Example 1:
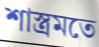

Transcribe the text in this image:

শাস্ত্রমতে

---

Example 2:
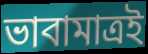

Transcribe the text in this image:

ভাবামাত্রই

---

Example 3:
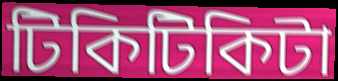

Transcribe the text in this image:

টিকিটিকিটা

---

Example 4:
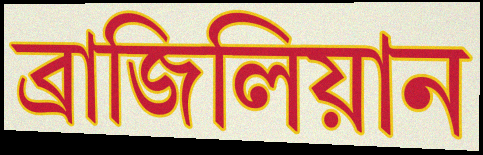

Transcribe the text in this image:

ব্রাজিলিয়ান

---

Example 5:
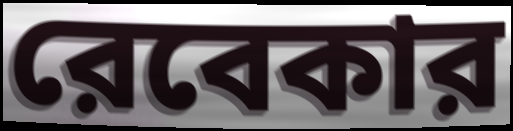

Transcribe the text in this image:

রেবেকার